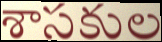
శాసకుల